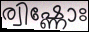
ര്വിഷ്ണോഃ